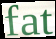
fat